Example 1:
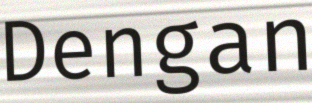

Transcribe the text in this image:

Dengan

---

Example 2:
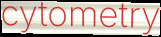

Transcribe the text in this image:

cytometry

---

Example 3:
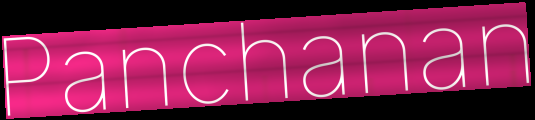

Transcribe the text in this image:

Panchanan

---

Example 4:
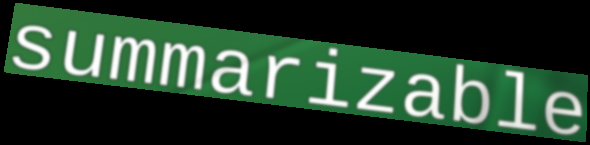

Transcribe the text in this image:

summarizable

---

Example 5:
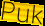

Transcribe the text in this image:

Puk